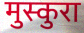
मुस्कुरा